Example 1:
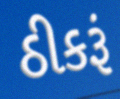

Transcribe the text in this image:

ઠીકરૂં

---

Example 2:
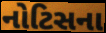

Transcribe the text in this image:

નોટિસના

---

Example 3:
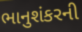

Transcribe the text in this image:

ભાનુશંકરની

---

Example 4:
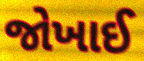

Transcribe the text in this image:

જોખાઈ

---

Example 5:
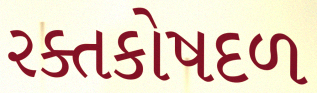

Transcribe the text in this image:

રક્તકોષદળ